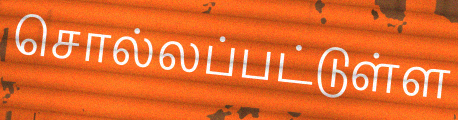
சொல்லப்பட்டுள்ள